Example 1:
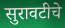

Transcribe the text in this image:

सुरावटीचे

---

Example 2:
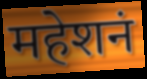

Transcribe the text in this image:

महेशनं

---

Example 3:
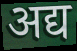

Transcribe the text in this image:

अद्य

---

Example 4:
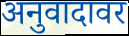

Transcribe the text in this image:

अनुवादावर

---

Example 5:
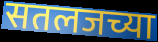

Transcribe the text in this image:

सतलजच्या